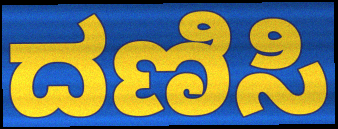
ದಣಿಸಿ